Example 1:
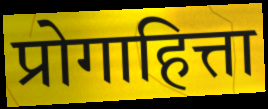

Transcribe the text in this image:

प्रोगाहित्ता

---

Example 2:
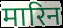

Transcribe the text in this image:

मारिन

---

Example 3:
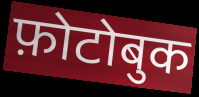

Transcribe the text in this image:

फ़ोटोबुक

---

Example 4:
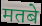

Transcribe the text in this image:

मतबे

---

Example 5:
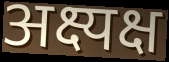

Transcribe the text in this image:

अक्ष्यक्ष